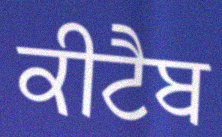
ਕੀਟੈਬ